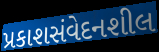
પ્રકાશસંવેદનશીલ